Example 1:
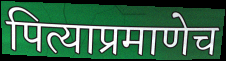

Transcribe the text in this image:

पित्याप्रमाणेच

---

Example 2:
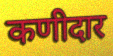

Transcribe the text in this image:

कणीदार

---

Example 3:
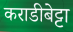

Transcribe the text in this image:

कराडीबेट्टा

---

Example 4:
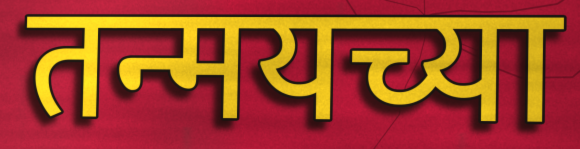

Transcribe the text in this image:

तन्मयच्या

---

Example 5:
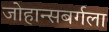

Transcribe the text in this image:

जोहान्सबर्गला